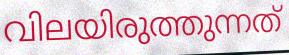
വിലയിരുത്തുന്നത്